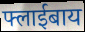
फ्लाईबाय